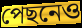
পেছনেও